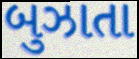
બુઝાતા